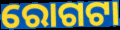
ରୋଗଟା